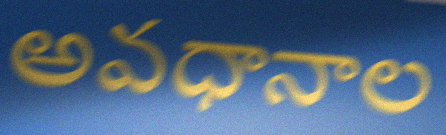
అవధానాల